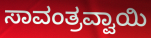
ಸಾವಂತ್ರವ್ವಾಯಿ